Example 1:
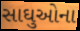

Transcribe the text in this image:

સાઘુઓના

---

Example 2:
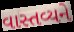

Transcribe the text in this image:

વાસ્તવ્યને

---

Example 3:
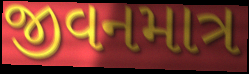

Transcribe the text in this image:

જીવનમાત્ર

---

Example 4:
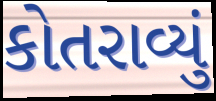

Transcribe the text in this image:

કોતરાવ્યું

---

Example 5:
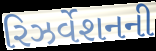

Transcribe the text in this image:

રિઝર્વેશનની